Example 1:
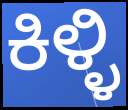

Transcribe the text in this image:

ಕಿಳ್ಳಿ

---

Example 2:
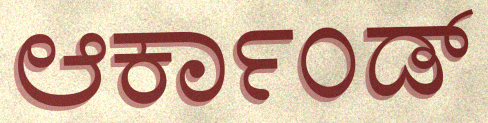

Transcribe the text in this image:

ಆರ್ಕಾಂಡ್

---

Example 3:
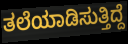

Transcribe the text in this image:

ತಲೆಯಾಡಿಸುತ್ತಿದ್ದೆ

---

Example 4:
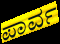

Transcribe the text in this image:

ಪಾರ್ವ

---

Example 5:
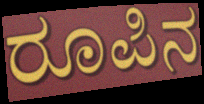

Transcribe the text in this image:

ರೂಪಿನ